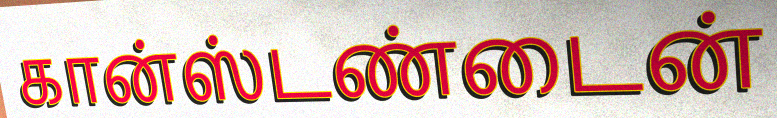
கான்ஸ்டண்டைன்